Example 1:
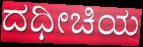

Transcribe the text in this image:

ದಧೀಚಿಯ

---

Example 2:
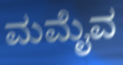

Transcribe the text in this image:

ಮಮೈವ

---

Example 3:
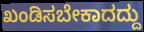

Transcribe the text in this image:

ಖಂಡಿಸಬೇಕಾದದ್ದು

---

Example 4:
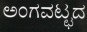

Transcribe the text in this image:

ಅಂಗವಟ್ಟದ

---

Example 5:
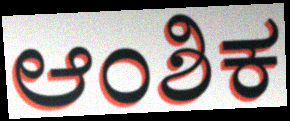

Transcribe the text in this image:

ಆಂಶಿಕ